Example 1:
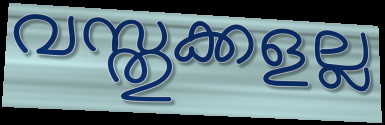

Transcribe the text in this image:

വസ്തുക്കളല്ല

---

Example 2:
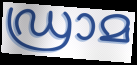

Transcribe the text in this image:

ഡ്രാമ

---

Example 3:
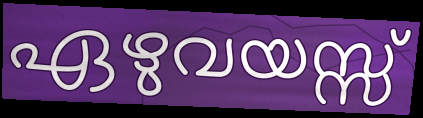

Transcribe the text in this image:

ഏഴുവയസ്സ്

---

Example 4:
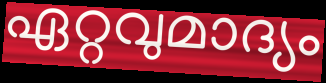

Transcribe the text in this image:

ഏറ്റവുമാദ്യം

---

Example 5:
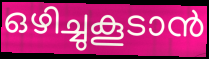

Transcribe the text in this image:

ഒഴിച്ചുകൂടാൻ